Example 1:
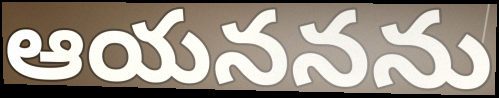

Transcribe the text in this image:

ఆయననను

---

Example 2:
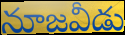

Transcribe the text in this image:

నూజవీడు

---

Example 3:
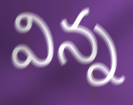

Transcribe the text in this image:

విన్న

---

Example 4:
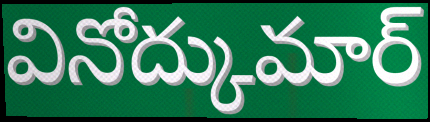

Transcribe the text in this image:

వినోద్కుమార్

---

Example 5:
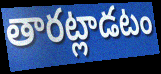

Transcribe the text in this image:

తారట్లాడటం